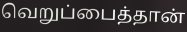
வெறுப்பைத்தான்